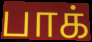
பாக்